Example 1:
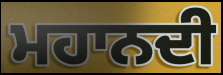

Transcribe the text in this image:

ਮਹਾਨਦੀ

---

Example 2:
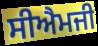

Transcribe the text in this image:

ਸੀਐਮਜੀ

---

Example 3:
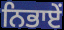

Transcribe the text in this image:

ਨਿਭਾਏਂ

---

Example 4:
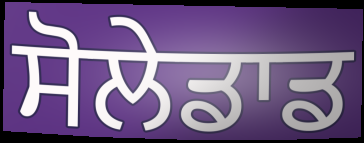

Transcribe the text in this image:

ਸੋਲੇਡਾਡ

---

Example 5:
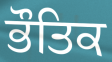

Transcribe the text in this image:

ਭੌਤਿਕ